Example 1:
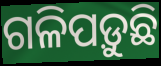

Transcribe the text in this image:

ଗଳିପଡ଼ୁଛି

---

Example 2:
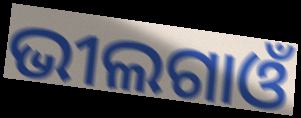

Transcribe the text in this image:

ଭୀଲଗାଓଁ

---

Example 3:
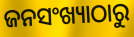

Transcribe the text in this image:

ଜନସଂଖ୍ୟାଠାରୁ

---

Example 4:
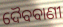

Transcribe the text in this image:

ଦୈବବାଣୀ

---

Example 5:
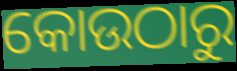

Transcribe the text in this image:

କୋଉଠାରୁ